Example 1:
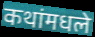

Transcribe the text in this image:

कथांमधले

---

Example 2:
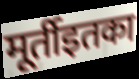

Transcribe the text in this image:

मूर्तीइतका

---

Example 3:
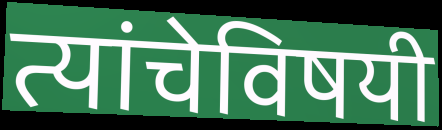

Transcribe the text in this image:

त्यांचेविषयी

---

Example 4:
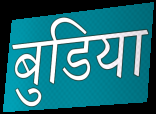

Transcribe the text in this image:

बुडिया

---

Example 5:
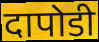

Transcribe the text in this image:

दापोडी